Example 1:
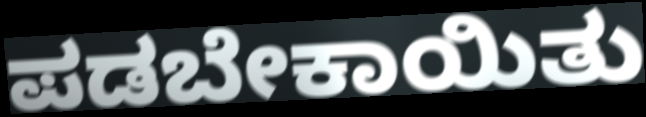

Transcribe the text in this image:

ಪಡಬೇಕಾಯಿತು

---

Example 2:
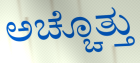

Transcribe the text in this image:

ಅಚ್ಚೊತ್ತು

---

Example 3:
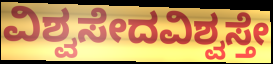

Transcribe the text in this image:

ವಿಶ್ವಸೇದವಿಶ್ವಸ್ತೇ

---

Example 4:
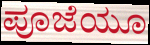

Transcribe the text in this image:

ಪೂಜೆಯೂ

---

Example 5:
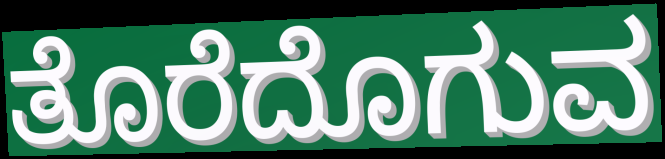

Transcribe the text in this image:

ತೊರೆದೊಗುವ